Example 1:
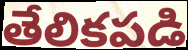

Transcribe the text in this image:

తేలికపడి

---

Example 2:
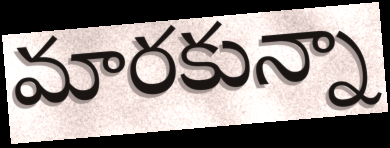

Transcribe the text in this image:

మారకున్నా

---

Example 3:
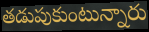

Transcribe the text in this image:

తడుపుకుంటున్నారు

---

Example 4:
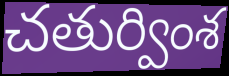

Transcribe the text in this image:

చతుర్వింశ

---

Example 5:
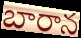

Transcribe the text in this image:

బారాన